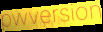
pwversion